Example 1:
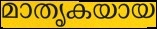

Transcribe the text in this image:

മാതൃകയായ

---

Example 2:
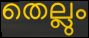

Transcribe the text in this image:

തെല്ലും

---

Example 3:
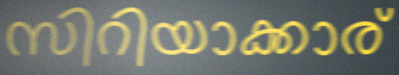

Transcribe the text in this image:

സിറിയാക്കാര്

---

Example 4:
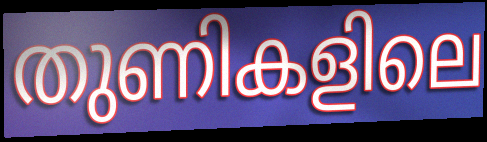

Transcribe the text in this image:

തുണികളിലെ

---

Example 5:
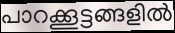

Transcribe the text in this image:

പാറക്കൂട്ടങ്ങളിൽ